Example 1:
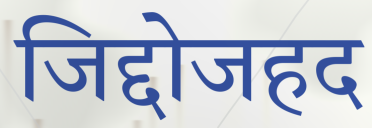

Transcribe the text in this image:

जिद्दोजहद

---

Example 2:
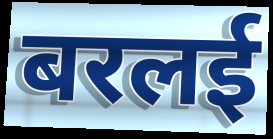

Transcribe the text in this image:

बरलई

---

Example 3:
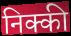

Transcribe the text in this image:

निक्‍की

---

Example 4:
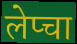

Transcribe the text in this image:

लेप्चा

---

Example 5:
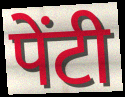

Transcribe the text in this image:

पेंटी